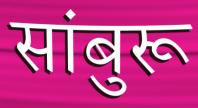
सांबुरू